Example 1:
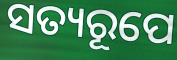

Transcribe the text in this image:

ସତ୍ୟରୂପେ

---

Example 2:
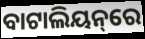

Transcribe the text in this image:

ବାଟାଲିୟନ୍‌ରେ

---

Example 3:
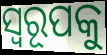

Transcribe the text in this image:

ସ୍ବରୂପକୁ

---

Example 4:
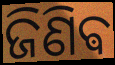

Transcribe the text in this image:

ଜିଣିଵ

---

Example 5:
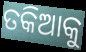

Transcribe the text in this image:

ତକିଆକୁ